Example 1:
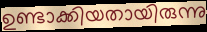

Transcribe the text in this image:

ഉണ്ടാക്കിയതായിരുന്നു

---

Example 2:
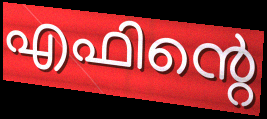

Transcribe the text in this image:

എഫിന്റെ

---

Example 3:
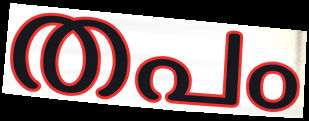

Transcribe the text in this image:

തപം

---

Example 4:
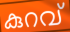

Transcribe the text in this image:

കുറവ്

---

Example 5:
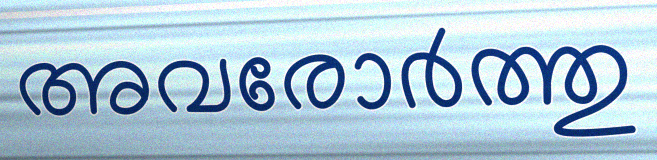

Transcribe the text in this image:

അവരോർത്തു